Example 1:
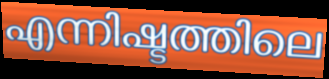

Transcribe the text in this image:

എന്നിഷ്ടത്തിലെ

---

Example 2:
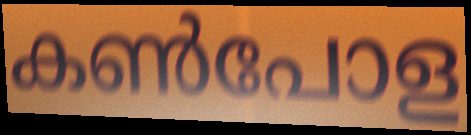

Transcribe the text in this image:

കൺപോള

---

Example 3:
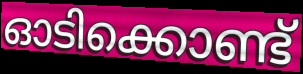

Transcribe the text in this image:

ഓടിക്കൊണ്ട്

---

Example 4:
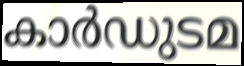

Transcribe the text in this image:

കാർഡുടമ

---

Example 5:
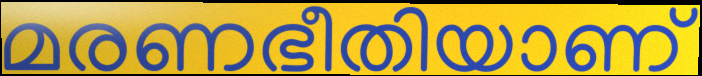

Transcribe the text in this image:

മരണഭീതിയാണ്